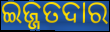
ଇଜ୍ଜତଦାର